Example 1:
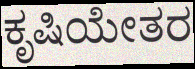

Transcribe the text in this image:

ಕೃಷಿಯೇತರ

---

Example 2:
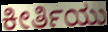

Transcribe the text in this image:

ಕೀರ್ತಿಯು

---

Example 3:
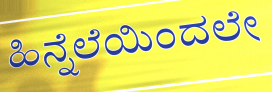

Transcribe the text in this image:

ಹಿನ್ನೆಲೆಯಿಂದಲೇ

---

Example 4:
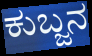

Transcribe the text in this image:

ಕುಬ್ಜನ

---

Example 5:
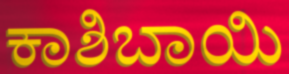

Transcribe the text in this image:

ಕಾಶಿಬಾಯಿ